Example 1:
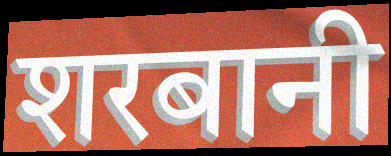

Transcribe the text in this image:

शरबानी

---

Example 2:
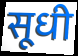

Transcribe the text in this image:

सूधी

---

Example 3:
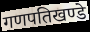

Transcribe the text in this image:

गणपतिखण्डे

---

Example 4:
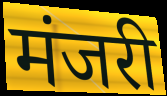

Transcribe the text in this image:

मंजरी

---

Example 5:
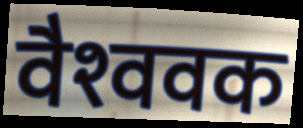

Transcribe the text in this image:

वैश्ववक